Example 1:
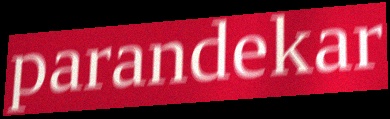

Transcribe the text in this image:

parandekar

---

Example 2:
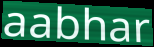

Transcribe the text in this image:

aabhar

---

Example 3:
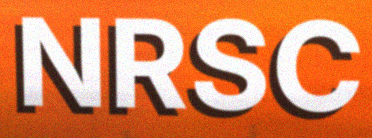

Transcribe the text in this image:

NRSC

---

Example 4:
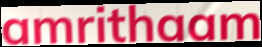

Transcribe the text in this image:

amrithaam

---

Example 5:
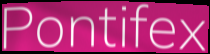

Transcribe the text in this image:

Pontifex